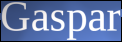
Gaspar